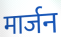
मार्जन